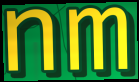
nm